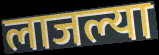
लाजल्या